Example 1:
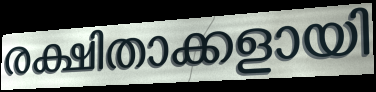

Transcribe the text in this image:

രക്ഷിതാക്കളായി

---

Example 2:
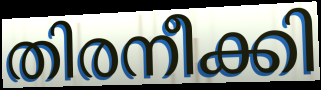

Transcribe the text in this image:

തിരനീക്കി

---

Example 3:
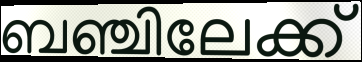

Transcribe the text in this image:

ബഞ്ചിലേക്ക്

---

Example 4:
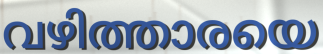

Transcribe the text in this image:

വഴിത്താരയെ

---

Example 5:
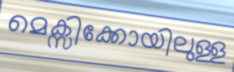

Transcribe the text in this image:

മെക്സിക്കോയിലുള്ള